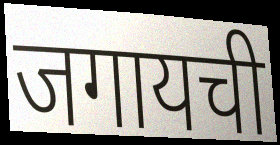
जगायची